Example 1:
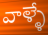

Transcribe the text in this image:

వాళ్ళే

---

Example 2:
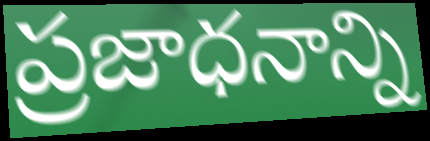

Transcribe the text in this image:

ప్రజాధనాన్ని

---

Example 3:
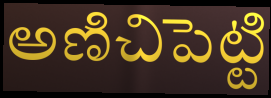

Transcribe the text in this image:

అణిచిపెట్టి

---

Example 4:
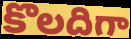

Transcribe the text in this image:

కొలదిగా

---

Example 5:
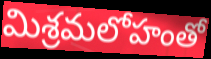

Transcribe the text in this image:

మిశ్రమలోహంతో